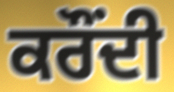
ਕਰੌਂਦੀ